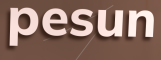
pesun